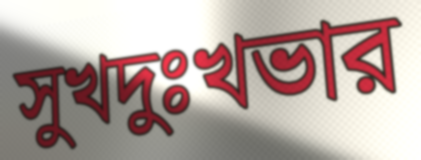
সুখদুঃখভার